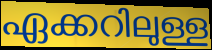
ഏക്കറിലുള്ള